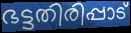
ഭട്ടതിരിപ്പാട്